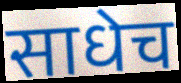
साधेच